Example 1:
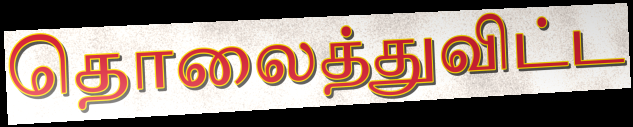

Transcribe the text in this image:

தொலைத்துவிட்ட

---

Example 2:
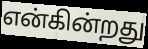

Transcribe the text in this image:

என்கின்றது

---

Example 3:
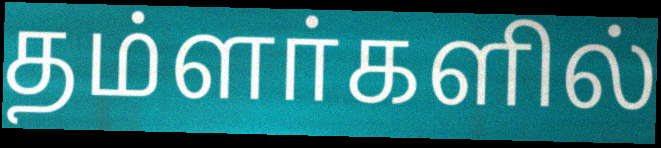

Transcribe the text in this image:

தம்ளர்களில்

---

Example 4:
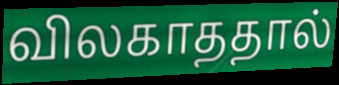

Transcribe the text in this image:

விலகாததால்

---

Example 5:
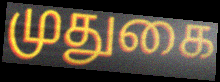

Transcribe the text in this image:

முதுகை